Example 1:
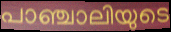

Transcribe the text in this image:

പാഞ്ചാലിയുടെ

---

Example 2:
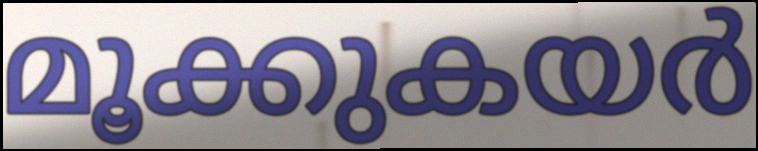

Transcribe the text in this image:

മൂക്കുകയർ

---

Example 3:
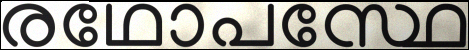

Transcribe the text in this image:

രഥോപസ്ഥേ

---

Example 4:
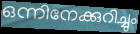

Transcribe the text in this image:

ഒന്നിനേക്കുറിച്ചും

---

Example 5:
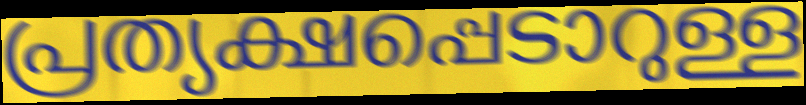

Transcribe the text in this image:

പ്രത്യക്ഷപ്പെടാറുള്ള